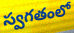
స్వగతంలో